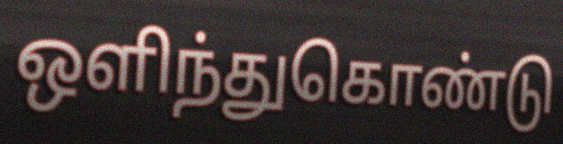
ஒளிந்துகொண்டு